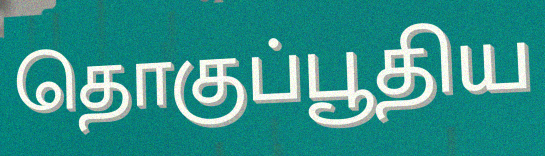
தொகுப்பூதிய